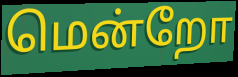
மென்றோ